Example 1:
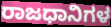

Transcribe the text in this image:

ರಾಜಧಾನಿಗಳ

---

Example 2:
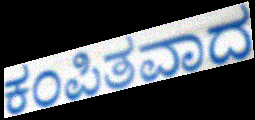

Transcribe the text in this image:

ಕಂಪಿತವಾದ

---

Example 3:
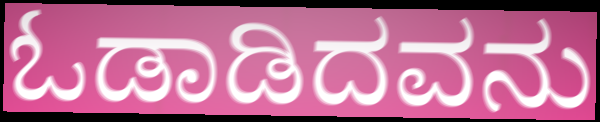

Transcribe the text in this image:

ಓಡಾಡಿದವನು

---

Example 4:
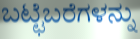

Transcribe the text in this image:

ಬಟ್ಟೆಬರೆಗಳನ್ನು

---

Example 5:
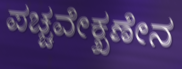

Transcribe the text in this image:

ಪಚ್ಚವೇಕ್ಖಣೇನ